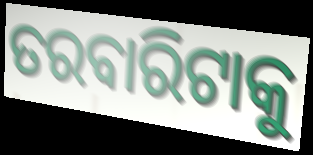
ତରବାରିଟାକୁ